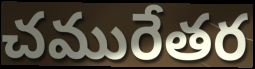
చమురేతర